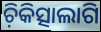
ଚ଼ିକିତ୍ସାଲାଗି